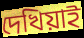
দেখিয়াই